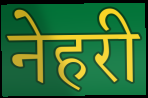
नेहरी